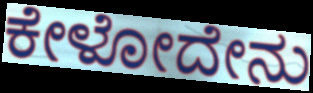
ಕೇಳೋದೇನು